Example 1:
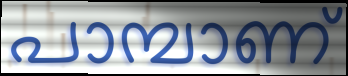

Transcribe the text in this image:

പാമ്പാണ്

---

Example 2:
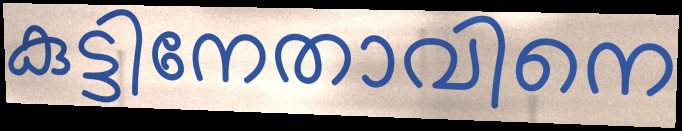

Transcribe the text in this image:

കുട്ടിനേതാവിനെ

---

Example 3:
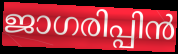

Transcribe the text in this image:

ജാഗരിപ്പിൻ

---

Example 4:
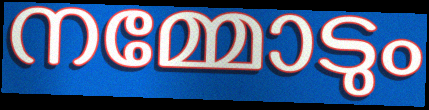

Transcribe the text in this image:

നമ്മോടും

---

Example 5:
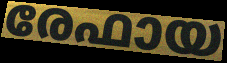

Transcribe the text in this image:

രേഫായ